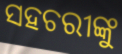
ସହଚରୀଙ୍କୁ